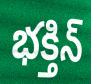
భక్తిన్